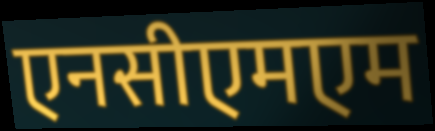
एनसीएमएम